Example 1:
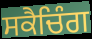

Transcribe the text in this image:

ਸਕੈਚਿੰਗ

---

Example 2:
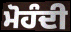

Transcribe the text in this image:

ਮੋਹੰਦੀ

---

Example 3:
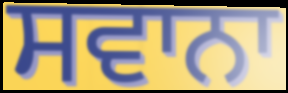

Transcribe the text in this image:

ਸਵਾਨਾ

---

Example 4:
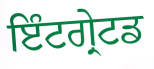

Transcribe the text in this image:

ਇੰਟਗ੍ਰੇਟਡ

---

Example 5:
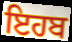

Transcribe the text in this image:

ਇਹਬ